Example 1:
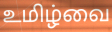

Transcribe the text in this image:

உமிழ்வை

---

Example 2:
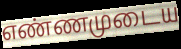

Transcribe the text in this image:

எண்ணமுடைய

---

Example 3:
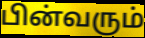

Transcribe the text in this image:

பின்வரும்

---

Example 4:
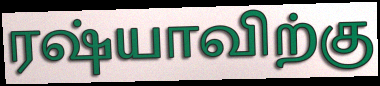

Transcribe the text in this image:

ரஷ்யாவிற்கு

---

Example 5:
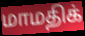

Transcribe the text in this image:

மாமதிக்